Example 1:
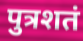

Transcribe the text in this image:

पुत्रशतं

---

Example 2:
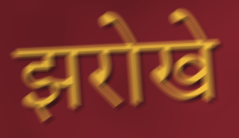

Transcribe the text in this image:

झरोखे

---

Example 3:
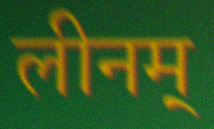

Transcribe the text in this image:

लीनम्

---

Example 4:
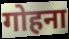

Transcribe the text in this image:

गोहना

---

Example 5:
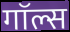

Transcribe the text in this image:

गॉल्स